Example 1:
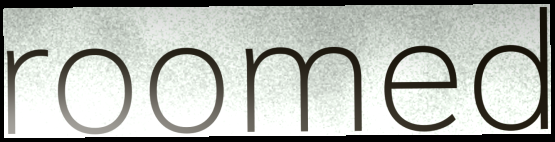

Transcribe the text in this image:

roomed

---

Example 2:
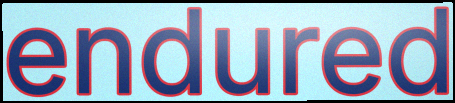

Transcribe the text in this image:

endured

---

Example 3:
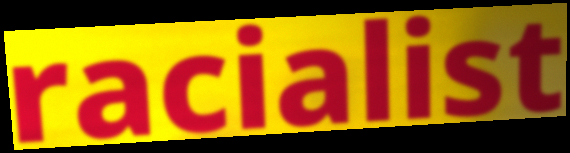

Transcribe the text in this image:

racialist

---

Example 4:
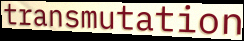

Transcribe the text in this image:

transmutation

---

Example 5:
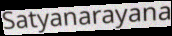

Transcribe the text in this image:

Satyanarayana